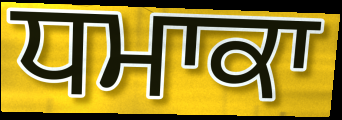
ਧਮਾਕਾ